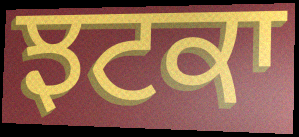
ਝਟਕਾ